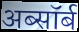
अब्सॉर्ब